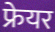
फ्रेयर